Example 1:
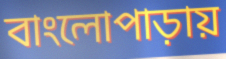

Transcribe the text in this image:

বাংলোপাড়ায়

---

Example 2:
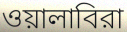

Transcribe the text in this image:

ওয়ালাবিরা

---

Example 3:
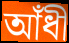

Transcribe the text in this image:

আঁধী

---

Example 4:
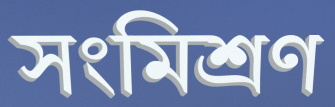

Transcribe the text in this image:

সংমিশ্রণ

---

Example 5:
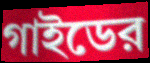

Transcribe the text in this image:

গাইডের